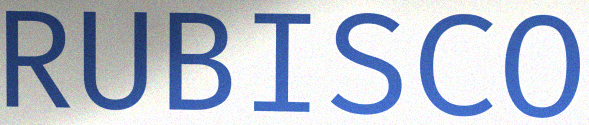
RUBISCO